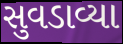
સુવડાવ્યા